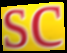
sc